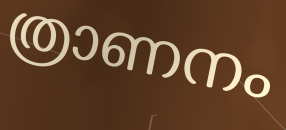
ത്രാണനം